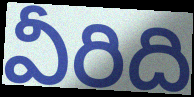
వీరిది